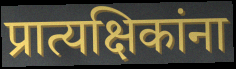
प्रात्यक्षिकांना